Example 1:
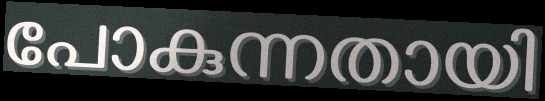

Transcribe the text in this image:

പോകുന്നതായി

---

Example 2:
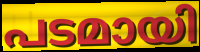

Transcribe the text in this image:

പടമായി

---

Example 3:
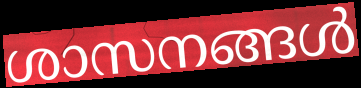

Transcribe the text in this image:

ശാസനങ്ങൾ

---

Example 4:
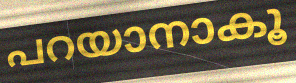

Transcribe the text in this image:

പറയാനാകൂ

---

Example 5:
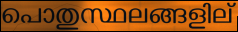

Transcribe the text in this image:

പൊതുസ്ഥലങ്ങളില്